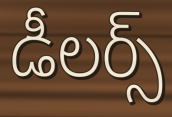
డీలర్స్